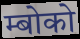
म्बोको